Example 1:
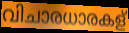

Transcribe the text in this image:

വിചാരധാരകള്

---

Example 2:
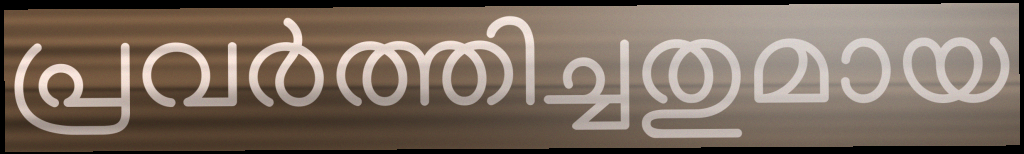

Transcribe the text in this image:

പ്രവർത്തിച്ചതുമായ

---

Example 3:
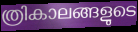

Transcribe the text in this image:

ത്രികാലങ്ങളുടെ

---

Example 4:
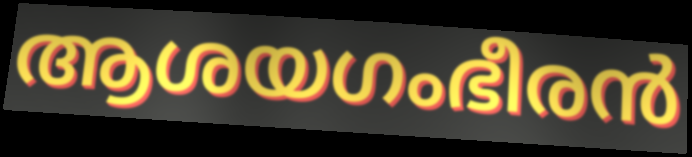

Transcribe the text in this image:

ആശയഗംഭീരൻ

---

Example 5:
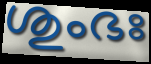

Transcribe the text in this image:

ശുംഭഃ